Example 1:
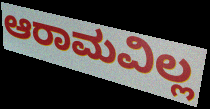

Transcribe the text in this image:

ಆರಾಮವಿಲ್ಲ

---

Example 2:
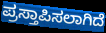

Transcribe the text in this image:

ಪ್ರಸ್ತಾಪಿಸಲಾಗಿದೆ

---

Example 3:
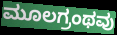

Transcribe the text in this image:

ಮೂಲಗ್ರಂಥವು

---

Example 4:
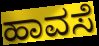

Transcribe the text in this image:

ಹಾವಸೆ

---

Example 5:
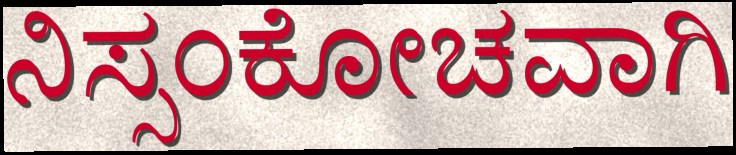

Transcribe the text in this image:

ನಿಸ್ಸಂಕೋಚವಾಗಿ